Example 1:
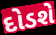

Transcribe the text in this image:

દોડશે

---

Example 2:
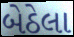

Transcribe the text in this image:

બેઠેલા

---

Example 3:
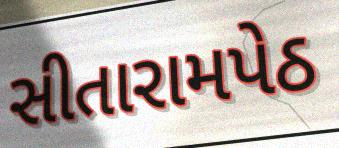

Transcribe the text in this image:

સીતારામપેઠ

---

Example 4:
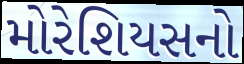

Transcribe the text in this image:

મોરેશિયસનો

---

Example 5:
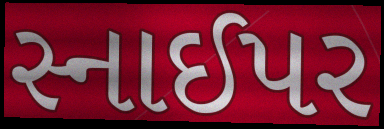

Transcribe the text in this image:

સ્નાઈપર